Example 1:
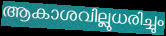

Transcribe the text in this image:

ആകാശവില്ലുധരിച്ചും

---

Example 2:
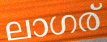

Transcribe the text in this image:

ലാഗര്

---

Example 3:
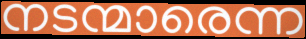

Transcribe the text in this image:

നടന്മാരെന്ന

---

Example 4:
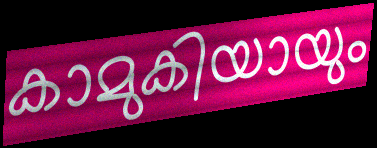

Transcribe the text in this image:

കാമുകിയായും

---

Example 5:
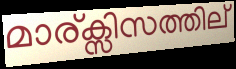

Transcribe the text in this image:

മാര്ക്സിസത്തില്